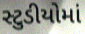
સ્ટુડીયોમાં